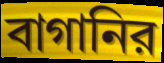
বাগানির